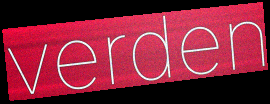
verden